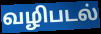
வழிபடல்